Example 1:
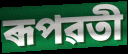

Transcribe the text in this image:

ৰূপৱতী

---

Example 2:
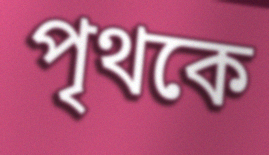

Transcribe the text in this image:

পৃথকে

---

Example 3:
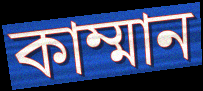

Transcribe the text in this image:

কাম্মান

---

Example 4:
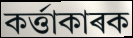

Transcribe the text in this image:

কৰ্ত্তাকাৰক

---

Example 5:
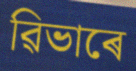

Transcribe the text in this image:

ৱিভাৰে